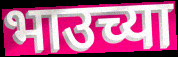
भाउच्या